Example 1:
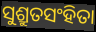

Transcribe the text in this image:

ସୁଶ୍ରୁତସଂହିତା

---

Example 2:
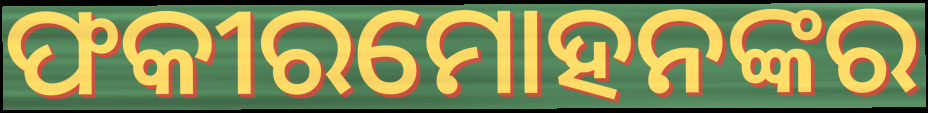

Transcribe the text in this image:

ଫକୀରମୋହନଙ୍କର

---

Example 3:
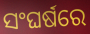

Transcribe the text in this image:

ସଂଘର୍ଷରେ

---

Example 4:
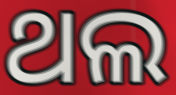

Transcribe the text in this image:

ଥଲ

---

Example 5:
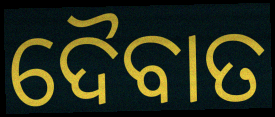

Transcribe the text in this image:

ଦୈବାତ